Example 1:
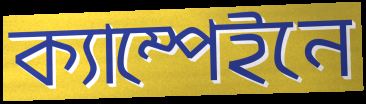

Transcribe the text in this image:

ক্যাম্পেইনে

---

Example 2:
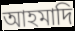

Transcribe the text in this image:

আহমাদি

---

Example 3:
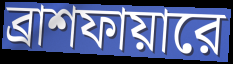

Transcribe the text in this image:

ব্রাশফায়ারে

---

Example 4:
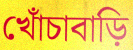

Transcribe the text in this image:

খোঁচাবাড়ি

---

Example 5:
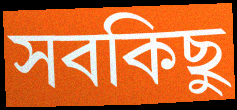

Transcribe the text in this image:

সবকিছু